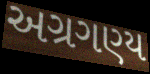
અગ્રગણ્ય